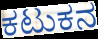
ಕಟುಕನ